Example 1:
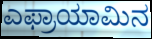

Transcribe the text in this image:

ಎಫ್ರಾಯಾಮಿನ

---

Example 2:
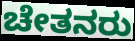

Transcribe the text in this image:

ಚೇತನರು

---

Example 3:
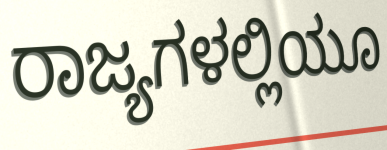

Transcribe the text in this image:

ರಾಜ್ಯಗಳಲ್ಲಿಯೂ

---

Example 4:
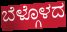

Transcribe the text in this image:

ಬೆಳ್ಗೊಳದ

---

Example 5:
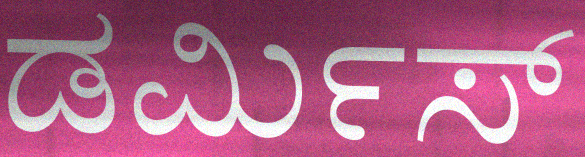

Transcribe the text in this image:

ಡರ್ಮಿಸ್